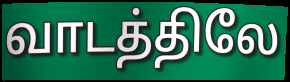
வாடத்திலே